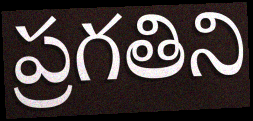
ప్రగతిని